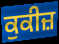
ਕੁਕੀਜ਼